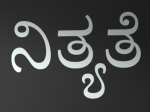
ನಿತ್ಯತೆ